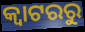
କ୍ୱାଟରରୁ